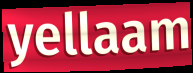
yellaam